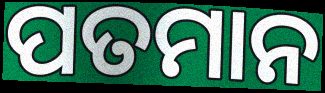
ପତମାନ